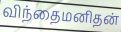
விந்தைமனிதன்